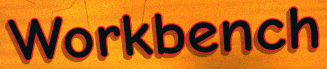
Workbench